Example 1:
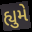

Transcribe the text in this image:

હ્યુમે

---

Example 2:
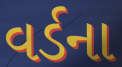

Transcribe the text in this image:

વર્ડના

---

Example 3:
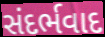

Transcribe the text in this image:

સંદર્ભવાદ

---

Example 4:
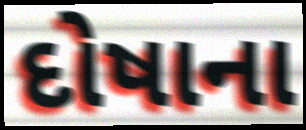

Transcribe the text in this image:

દોષાના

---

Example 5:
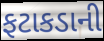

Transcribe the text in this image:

ફટાકડાની